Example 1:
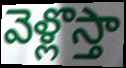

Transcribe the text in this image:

వెళ్లొస్తా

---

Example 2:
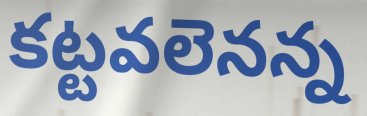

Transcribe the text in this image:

కట్టవలెనన్న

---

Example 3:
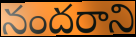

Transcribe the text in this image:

నందరాని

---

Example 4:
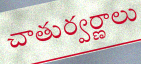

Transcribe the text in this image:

చాతుర్వర్ణాలు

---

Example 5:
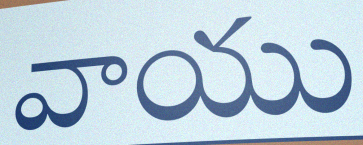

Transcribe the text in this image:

వాయు